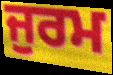
ਜੁਰਮ